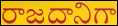
రాజదానిగా